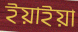
ইয়াইয়া